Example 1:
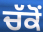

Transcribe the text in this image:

ਚੱਕੋਂ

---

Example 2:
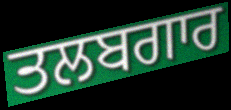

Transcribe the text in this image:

ਤਲਬਗਾਰ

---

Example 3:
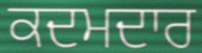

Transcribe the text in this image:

ਕਦਮਦਾਰ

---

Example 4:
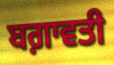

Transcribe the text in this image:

ਬਗ਼ਾਵਤੀ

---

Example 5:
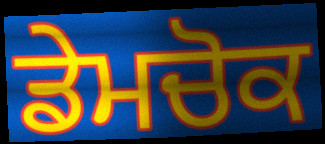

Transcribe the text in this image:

ਡੇਮਚੋਕ